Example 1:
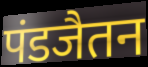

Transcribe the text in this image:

पंडजैतन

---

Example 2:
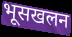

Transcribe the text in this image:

भूसखलन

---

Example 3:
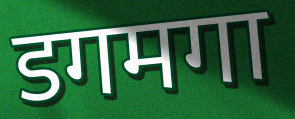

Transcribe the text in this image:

डगमगा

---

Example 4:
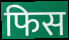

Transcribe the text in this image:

फिस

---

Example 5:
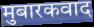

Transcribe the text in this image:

मुबारकवाद